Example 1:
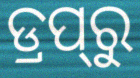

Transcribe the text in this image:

ଡ୍ରପ୍‍ରୁ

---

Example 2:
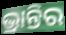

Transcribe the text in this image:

ଭ୍ରାନ୍ତିର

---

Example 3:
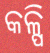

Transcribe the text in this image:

କଳ୍ପି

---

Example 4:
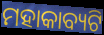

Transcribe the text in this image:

ମହାକାବ୍ୟଟି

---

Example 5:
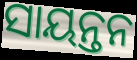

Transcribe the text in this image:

ସାୟନ୍ତନ